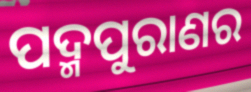
ପଦ୍ମପୁରାଣର